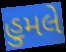
હુમલે